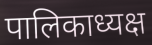
पालिकाध्यक्ष